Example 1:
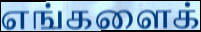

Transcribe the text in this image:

எங்களைக்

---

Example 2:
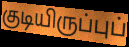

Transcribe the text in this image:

குடியிருப்புப்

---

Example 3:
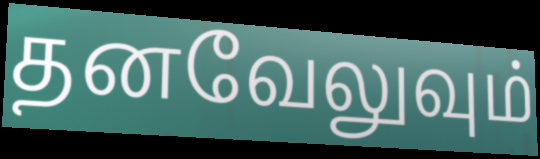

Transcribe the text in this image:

தனவேலுவும்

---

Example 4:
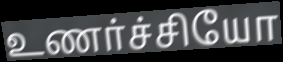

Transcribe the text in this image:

உணர்ச்சியோ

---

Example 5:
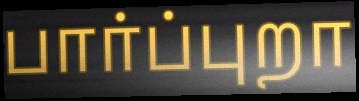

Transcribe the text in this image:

பார்ப்புறா